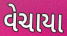
વેચાયા